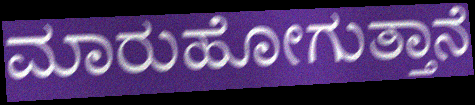
ಮಾರುಹೋಗುತ್ತಾನೆ